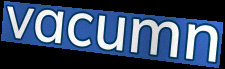
vacumn